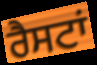
ਰੈਸਟਾਂ